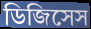
ডিজিসেস